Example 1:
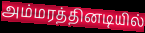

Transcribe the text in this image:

அம்மரத்தினடியில்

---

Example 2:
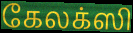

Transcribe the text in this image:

கேலக்ஸி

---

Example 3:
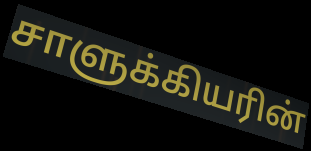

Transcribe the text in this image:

சாளுக்கியரின்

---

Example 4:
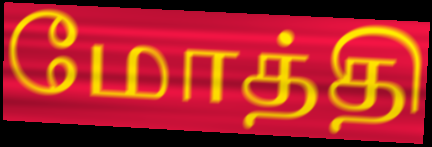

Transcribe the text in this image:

மோத்தி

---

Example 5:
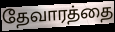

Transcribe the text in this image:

தேவாரத்தை